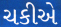
ચકીએ